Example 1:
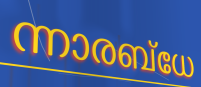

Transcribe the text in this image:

ന്നാരബ്ധേ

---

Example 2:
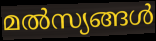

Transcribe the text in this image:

മൽസ്യങ്ങൾ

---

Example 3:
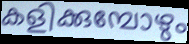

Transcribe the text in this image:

കളിക്കുമ്പോഴും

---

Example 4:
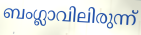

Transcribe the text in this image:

ബംഗ്ലാവിലിരുന്ന്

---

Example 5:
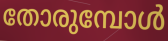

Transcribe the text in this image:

തോരുമ്പോൾ